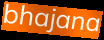
bhajana